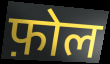
फ़ोल